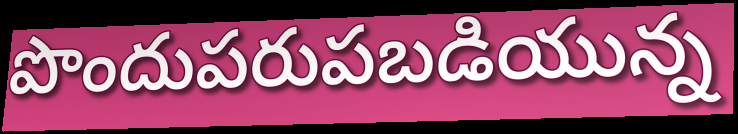
పొందుపరుపబడియున్న